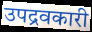
उपद्रवकारी